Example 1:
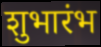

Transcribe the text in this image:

शुभारंभ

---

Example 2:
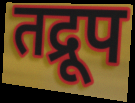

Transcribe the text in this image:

तद्रूप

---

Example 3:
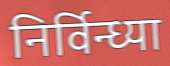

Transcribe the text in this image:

निर्विन्ध्या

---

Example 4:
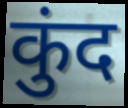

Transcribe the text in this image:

कुंद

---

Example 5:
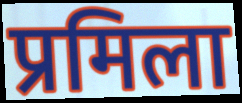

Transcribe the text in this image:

प्रमिला